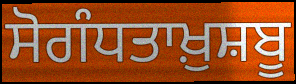
ਸੋਗੰਧਤਾਖ਼ੁਸ਼ਬੂ